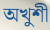
অখুশী